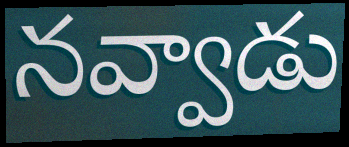
నవ్వాడు